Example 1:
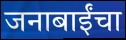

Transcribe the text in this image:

जनाबाईंचा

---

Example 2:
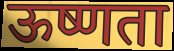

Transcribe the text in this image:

ऊष्णता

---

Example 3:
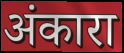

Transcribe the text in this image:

अंकारा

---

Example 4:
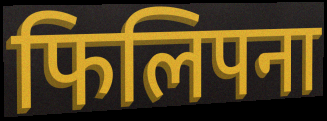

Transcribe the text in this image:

फिलिपना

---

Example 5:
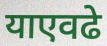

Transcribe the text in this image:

याएवढे